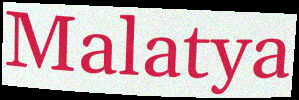
Malatya